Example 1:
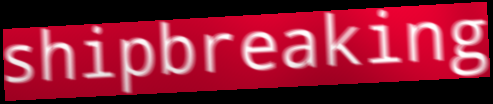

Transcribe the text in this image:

shipbreaking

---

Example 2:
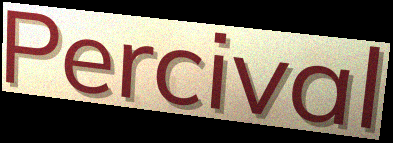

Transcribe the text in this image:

Percival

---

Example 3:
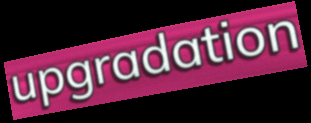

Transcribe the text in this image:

upgradation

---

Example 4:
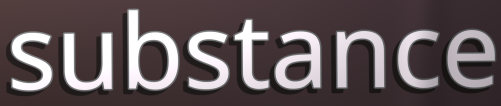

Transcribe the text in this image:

substance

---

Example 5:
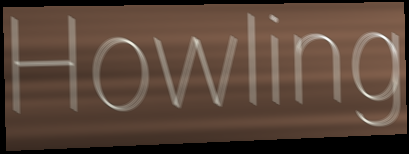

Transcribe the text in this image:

Howling